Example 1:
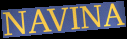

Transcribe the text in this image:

NAVINA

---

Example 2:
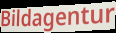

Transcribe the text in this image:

Bildagentur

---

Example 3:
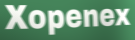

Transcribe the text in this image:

Xopenex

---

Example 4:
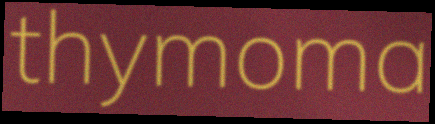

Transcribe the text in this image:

thymoma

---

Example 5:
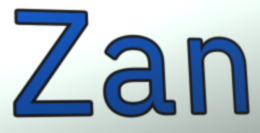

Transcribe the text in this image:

Zan